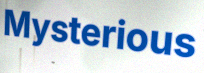
Mysterious